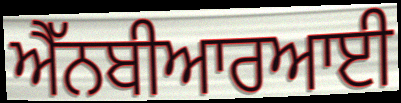
ਐੱਨਬੀਆਰਆਈ